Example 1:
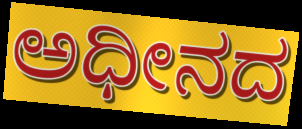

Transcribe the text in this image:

ಅಧೀನದ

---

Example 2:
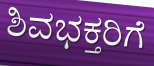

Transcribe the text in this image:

ಶಿವಭಕ್ತರಿಗೆ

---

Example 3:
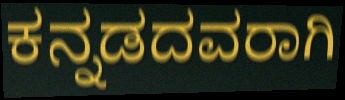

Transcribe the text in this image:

ಕನ್ನಡದವರಾಗಿ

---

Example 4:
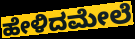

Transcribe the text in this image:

ಹೇಳಿದಮೇಲೆ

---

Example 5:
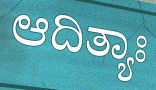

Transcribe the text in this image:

ಆದಿತ್ಯಾಃ